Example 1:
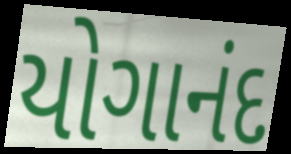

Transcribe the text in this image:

યોગાનંદ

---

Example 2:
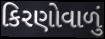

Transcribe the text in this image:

કિરણોવાળું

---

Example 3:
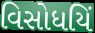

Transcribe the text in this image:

વિસોધયિં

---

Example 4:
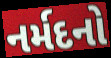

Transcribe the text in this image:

નર્મદનો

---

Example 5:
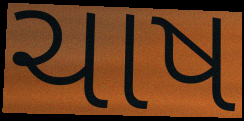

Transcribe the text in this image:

ચાષ